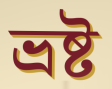
ভ্রষ্ট